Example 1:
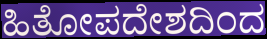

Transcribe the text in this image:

ಹಿತೋಪದೇಶದಿಂದ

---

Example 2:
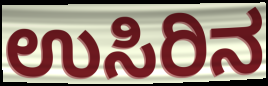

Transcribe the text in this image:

ಉಸಿರಿನ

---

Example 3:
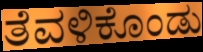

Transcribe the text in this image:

ತೆವಳಿಕೊಂಡು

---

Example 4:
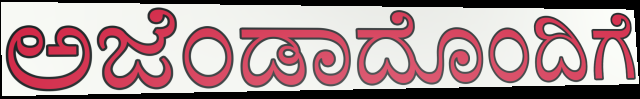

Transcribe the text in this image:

ಅಜೆಂಡಾದೊಂದಿಗೆ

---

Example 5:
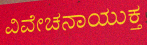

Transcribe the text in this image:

ವಿವೇಚನಾಯುಕ್ತ